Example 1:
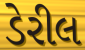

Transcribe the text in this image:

ડેરીલ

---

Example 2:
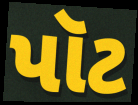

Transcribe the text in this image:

પૉટ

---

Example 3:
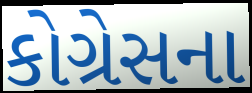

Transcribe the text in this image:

કોગ્રેસના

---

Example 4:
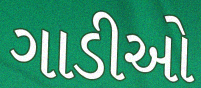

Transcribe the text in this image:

ગાડીઓ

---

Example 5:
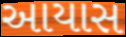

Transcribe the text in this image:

આયાસ